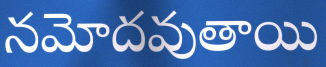
నమోదవుతాయి